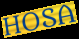
HOSA